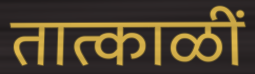
तात्काळीं